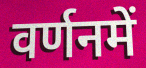
वर्णनमें